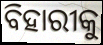
ବିହାରୀକୁ